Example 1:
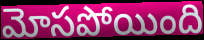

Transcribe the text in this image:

మోసపోయింది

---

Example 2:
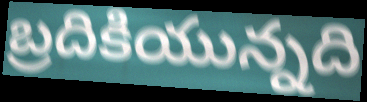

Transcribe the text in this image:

బ్రదికియున్నది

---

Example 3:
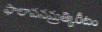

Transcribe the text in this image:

ఫాలావనమ్రత్కిరీటం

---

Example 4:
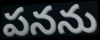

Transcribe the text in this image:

పనను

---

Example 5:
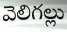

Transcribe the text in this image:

వెలిగల్లు